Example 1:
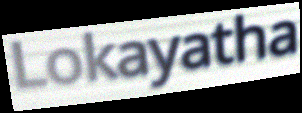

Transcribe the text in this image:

Lokayatha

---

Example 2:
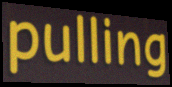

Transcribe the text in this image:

pulling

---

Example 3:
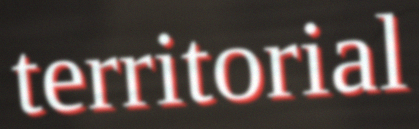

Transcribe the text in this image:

territorial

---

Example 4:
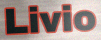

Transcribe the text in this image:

Livio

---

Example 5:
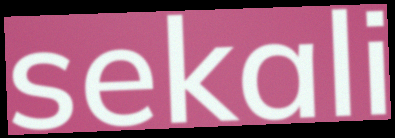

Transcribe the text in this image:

sekali